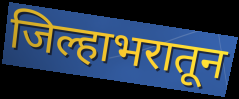
जिल्हाभरातून